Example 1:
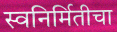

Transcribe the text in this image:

स्वनिर्मितीचा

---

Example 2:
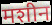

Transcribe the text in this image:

मशीन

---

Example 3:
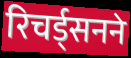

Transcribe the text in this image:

रिचर्ड्सनने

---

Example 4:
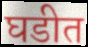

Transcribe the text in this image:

घडीत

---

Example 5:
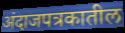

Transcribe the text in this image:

अंदाजपत्रकातील